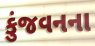
કુંજવનના